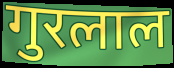
गुरलाल